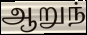
ஆறுந்